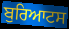
ਬੁਰਿਆਟਸ